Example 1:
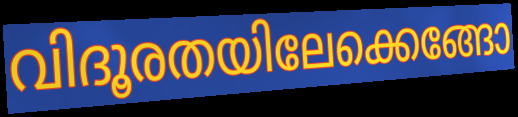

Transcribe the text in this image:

വിദൂരതയിലേക്കെങ്ങോ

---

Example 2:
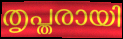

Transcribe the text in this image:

തൃപ്തരായി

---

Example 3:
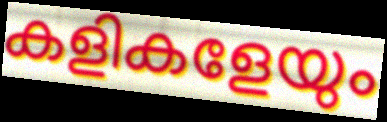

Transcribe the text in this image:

കളികളേയും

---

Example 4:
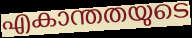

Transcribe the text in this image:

എകാന്തതയുടെ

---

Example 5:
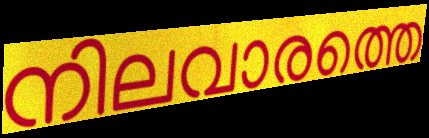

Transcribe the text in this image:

നിലവാരത്തെ